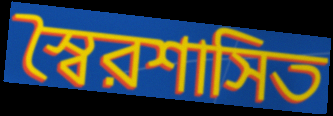
স্বৈরশাসিত